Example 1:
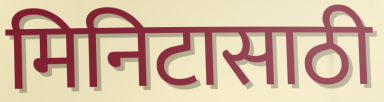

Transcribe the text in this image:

मिनिटासाठी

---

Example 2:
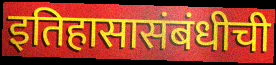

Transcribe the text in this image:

इतिहासासंबंधीची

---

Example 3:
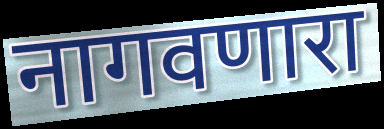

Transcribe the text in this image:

नागवणारा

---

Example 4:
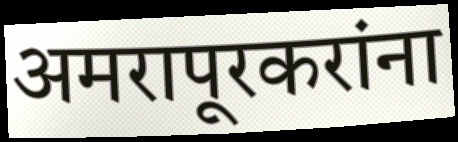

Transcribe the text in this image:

अमरापूरकरांना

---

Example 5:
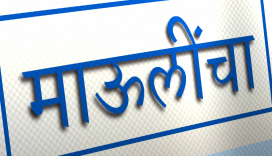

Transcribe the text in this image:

माऊलींचा